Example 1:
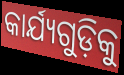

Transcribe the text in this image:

କାର୍ଯ୍ୟଗୁଡ଼ିକୁ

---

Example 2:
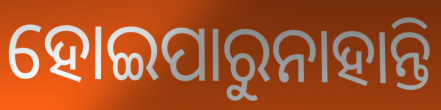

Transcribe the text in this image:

ହୋଇପାରୁନାହାନ୍ତି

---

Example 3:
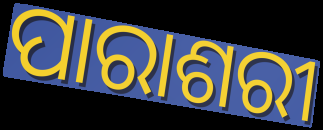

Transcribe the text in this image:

ପାରାଶରୀ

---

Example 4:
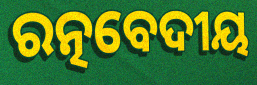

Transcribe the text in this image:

ରତ୍ନବେଦୀୟ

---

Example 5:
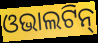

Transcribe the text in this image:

ଓଭାଲଟିନ୍